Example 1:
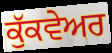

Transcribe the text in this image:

ਕੁੱਕਵੇਅਰ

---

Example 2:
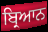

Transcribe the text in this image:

ਬ੍ਰਿਆਨ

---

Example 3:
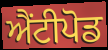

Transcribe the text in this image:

ਐਂਟੀਪੋਡ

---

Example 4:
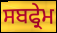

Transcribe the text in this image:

ਸਬਫ੍ਰੇਮ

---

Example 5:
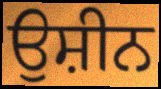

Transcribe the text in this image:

ਉਸ਼ੀਨ